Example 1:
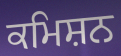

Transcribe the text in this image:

ਕਮਿਸ਼ਨ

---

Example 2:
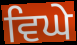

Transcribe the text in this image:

ਵਿਘੇ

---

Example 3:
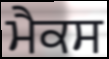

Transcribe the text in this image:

ਮੈਕਸ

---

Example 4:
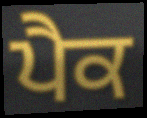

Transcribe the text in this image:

ਪੈਕ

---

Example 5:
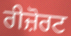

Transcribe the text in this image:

ਰੀਜ਼ੋਰਟ